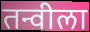
तन्वीला